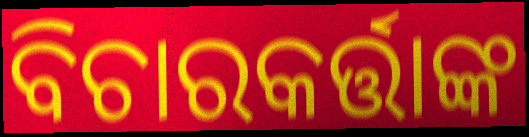
ବିଚାରକର୍ତ୍ତାଙ୍କ